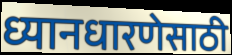
ध्यानधारणेसाठी